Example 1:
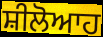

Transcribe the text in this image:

ਸ਼ੀਲੋਆਹ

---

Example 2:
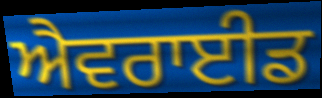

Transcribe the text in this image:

ਐਵਰਾਈਡ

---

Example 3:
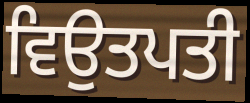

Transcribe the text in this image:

ਵਿਉਤਪਤੀ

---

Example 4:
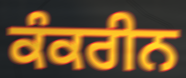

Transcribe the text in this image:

ਕੰਕਰੀਨ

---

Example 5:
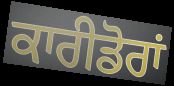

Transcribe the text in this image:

ਕਾਰੀਡੋਰਾਂ